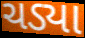
ચડ્યા